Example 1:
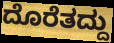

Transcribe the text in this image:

ದೊರೆತದ್ದು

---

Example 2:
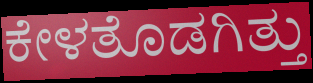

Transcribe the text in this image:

ಕೇಳತೊಡಗಿತ್ತು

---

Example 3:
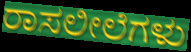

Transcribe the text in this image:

ರಾಸಲೀಲೆಗಳು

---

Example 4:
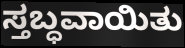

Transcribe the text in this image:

ಸ್ತಬ್ಧವಾಯಿತು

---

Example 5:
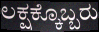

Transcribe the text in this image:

ಲಕ್ಷಕ್ಕೊಬ್ಬರು